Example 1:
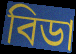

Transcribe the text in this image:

বিডা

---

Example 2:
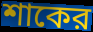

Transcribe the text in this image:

শাকের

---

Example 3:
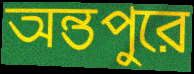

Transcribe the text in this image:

অন্তপুরে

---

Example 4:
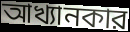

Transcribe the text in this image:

আখ্যানকার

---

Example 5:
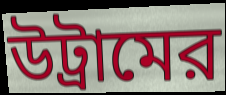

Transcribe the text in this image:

উট্রামের